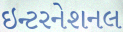
ઇન્ટરનેશનલ